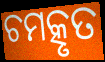
ଚମତ୍କୃତ